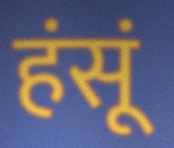
हंसूं